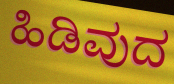
ಹಿಡಿವುದ